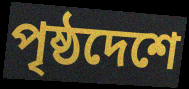
পৃষ্ঠদেশে